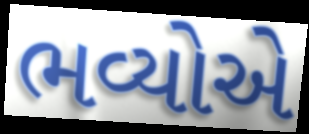
ભવ્યોએ